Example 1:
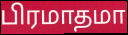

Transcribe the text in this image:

பிரமாதமா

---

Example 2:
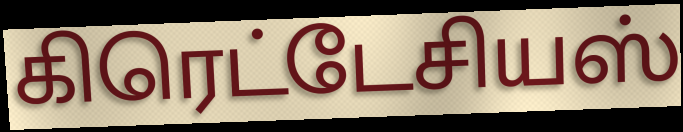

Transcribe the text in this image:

கிரெட்டேசியஸ்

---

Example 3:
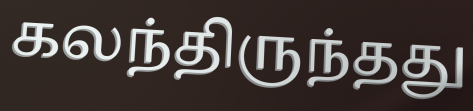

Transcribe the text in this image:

கலந்திருந்தது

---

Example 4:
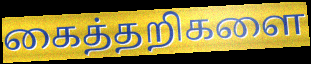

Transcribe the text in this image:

கைத்தறிகளை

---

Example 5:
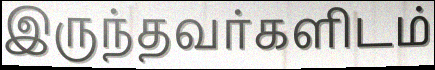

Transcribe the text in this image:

இருந்தவர்களிடம்